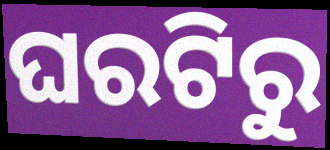
ଘରଟିରୁ